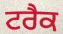
ਟਰੈਕ